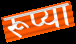
रूप्या